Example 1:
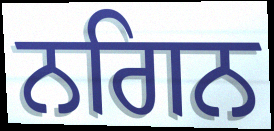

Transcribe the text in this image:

ਨਗਿਨ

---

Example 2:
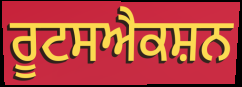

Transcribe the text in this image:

ਰੂਟਸਐਕਸ਼ਨ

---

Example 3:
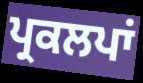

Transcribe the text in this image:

ਪ੍ਰਕਲਪਾਂ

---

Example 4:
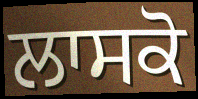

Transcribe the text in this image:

ਲਾਸਕੋ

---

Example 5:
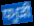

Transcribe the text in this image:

ਧਮੂੜੀ